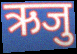
ऋजु